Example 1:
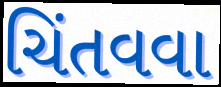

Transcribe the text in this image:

ચિંતવવા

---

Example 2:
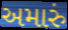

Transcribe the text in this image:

અમારું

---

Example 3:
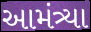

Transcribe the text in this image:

આમંત્ર્યા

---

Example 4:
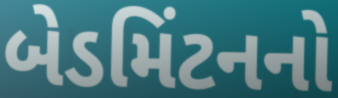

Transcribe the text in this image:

બેડમિંટનનો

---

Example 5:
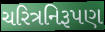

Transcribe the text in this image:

ચરિત્રનિરૂપણ